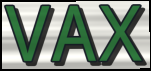
VAX